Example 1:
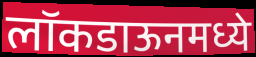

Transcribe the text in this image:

लॉकडाऊनमध्ये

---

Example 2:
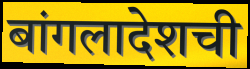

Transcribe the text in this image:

बांगलादेशची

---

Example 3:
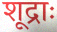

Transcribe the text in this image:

शूद्राः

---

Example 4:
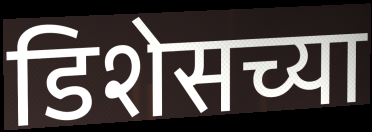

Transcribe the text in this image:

डिशेसच्या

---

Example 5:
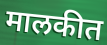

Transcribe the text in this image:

मालकीत